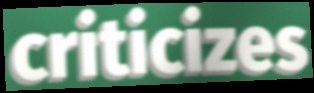
criticizes